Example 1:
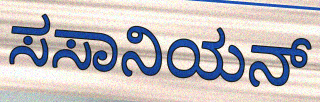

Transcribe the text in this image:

ಸಸಾನಿಯನ್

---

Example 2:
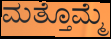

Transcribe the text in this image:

ಮತ್ತೊಮ್ಮೆ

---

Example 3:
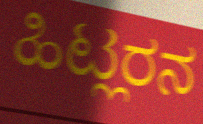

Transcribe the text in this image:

ಹಿಟ್ಲರನ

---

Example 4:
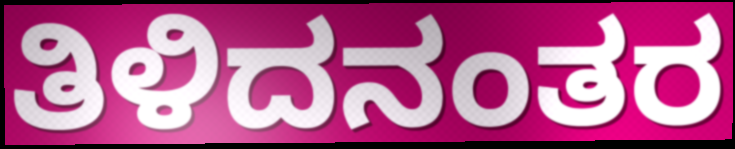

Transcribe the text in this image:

ತಿಳಿದನಂತರ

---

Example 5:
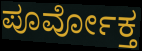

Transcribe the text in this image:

ಪೂರ್ವೋಕ್ತ